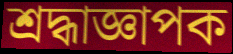
শ্রদ্ধাজ্ঞাপক